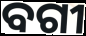
ବଗୀ